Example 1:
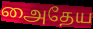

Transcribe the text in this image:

அைதேய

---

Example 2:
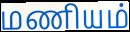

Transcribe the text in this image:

மணியம்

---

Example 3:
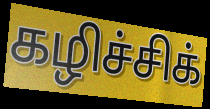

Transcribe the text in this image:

கழிச்சிக்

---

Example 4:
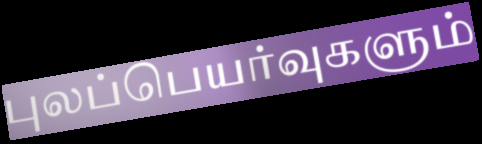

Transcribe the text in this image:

புலப்பெயர்வுகளும்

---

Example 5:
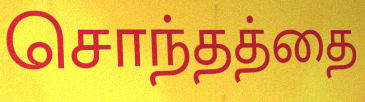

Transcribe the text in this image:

சொந்தத்தை